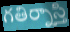
గతిర్నాస్తి